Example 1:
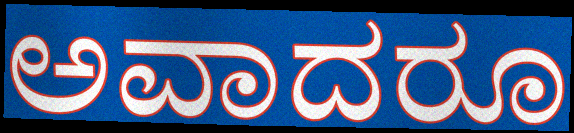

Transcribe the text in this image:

ಅವಾದರೂ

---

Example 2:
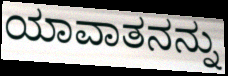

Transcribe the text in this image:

ಯಾವಾತನನ್ನು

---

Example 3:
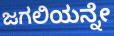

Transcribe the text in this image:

ಜಗಲಿಯನ್ನೇ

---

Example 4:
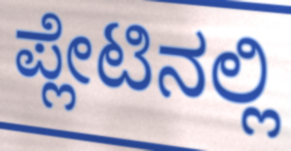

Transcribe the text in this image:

ಪ್ಲೇಟಿನಲ್ಲಿ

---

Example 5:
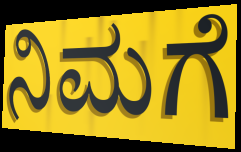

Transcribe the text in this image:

ನಿಮಗೆ